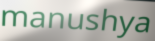
manushya